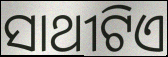
ସାଥୀଟିଏ